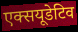
एक्सयूडेटिव